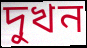
দুখন